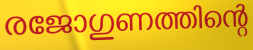
രജോഗുണത്തിന്റെ